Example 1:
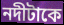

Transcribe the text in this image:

নদীটাকে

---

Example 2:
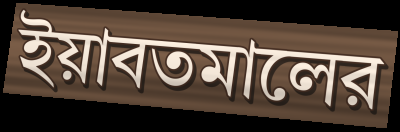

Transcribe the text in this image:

ইয়াবতমালের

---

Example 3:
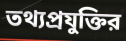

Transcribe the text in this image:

তথ্যপ্রযুক্তির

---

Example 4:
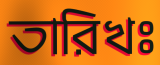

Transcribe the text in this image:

তারিখঃ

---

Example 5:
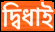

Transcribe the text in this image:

দ্বিধাই